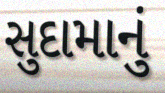
સુદામાનું